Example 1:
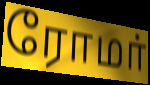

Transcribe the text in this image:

ரோமர்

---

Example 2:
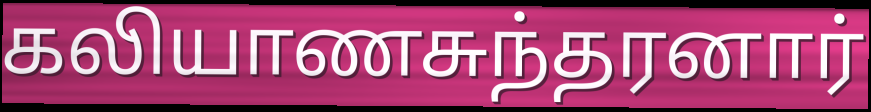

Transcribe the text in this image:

கலியாணசுந்தரனார்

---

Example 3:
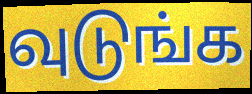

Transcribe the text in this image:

வுடுங்க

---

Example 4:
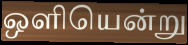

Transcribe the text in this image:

ஒளியென்று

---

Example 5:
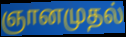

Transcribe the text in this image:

ஞானமுதல்